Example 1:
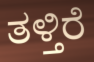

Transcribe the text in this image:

ತಳ್ತಿರೆ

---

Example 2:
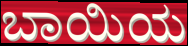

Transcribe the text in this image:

ಬಾಯಿಯ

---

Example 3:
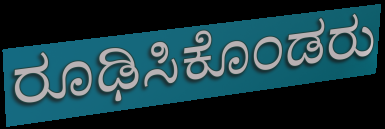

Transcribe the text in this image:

ರೂಢಿಸಿಕೊಂಡರು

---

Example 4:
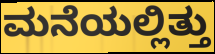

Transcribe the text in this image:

ಮನೆಯಲ್ಲಿತ್ತು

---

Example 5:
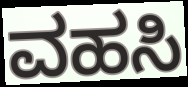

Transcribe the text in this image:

ವಹಸಿ